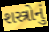
શસ્ત્રોનું